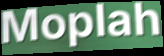
Moplah